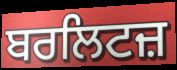
ਬਰਲਿਟਜ਼